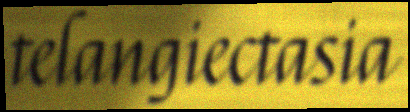
telangiectasia